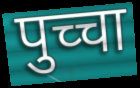
पुच्चा